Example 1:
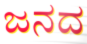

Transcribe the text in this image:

ಜನದ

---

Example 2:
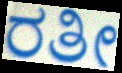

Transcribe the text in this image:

ರತೀ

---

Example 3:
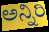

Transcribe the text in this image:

ಅನ್ನಿರಿ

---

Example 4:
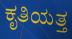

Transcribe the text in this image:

ಕೃತಿಯತ್ತ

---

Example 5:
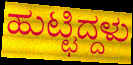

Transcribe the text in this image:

ಹುಟ್ಟಿದ್ದಳು